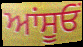
ਆਂਸੂਓਂ